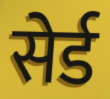
सेर्ड